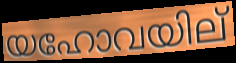
യഹോവയില്